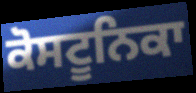
ਕੋਸਟੂਨਿਕਾ